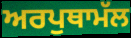
ਅਰਪੁਥਾਮੱਲ